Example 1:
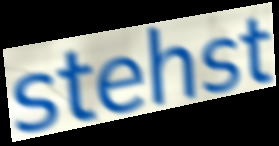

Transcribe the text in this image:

stehst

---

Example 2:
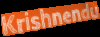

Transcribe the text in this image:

Krishnendu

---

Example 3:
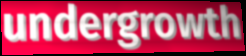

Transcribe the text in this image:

undergrowth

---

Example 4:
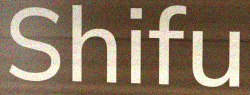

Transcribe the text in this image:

Shifu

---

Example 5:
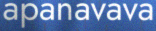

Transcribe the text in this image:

apanavava